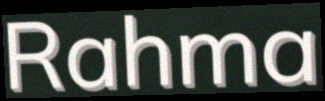
Rahma